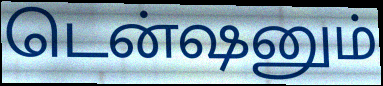
டென்ஷனும்